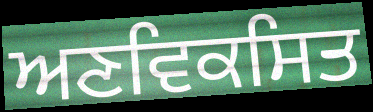
ਅਣਵਿਕਸਿਤ